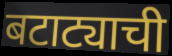
बटाट्याची